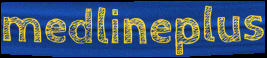
medlineplus